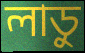
লাডু